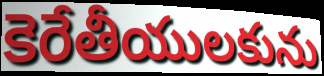
కెరేతీయులకును